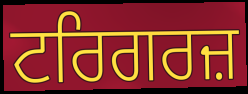
ਟਰਿਗਰਜ਼